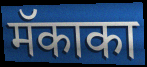
मॅकाका